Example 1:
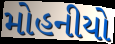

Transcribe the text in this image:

મોહનીયો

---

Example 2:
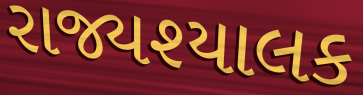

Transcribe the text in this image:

રાજ્યશ્યાલક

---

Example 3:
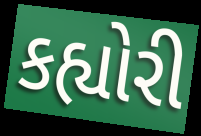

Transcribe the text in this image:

કહ્યોરી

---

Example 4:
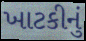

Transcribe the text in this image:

ખાટકીનું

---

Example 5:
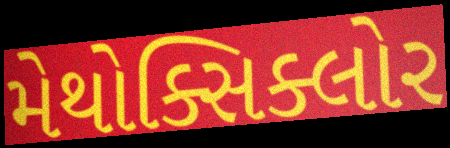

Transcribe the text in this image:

મેથોક્સિક્લોર